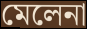
মেলেনা